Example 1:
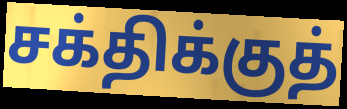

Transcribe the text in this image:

சக்திக்குத்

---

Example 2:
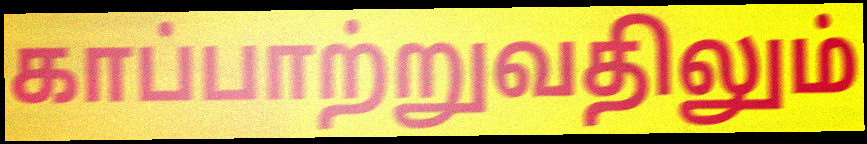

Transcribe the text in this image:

காப்பாற்றுவதிலும்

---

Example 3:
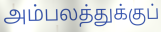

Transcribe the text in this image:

அம்பலத்துக்குப்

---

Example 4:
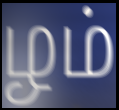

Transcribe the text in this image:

ழம்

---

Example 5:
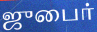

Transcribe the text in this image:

ஜுபைர்